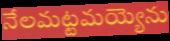
నేలమట్టమయ్యెను